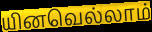
யினவெல்லாம்